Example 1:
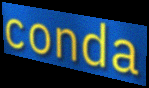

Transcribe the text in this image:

conda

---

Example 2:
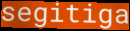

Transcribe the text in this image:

segitiga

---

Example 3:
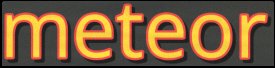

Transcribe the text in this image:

meteor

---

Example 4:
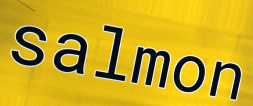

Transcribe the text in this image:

salmon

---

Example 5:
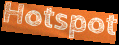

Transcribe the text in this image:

Hotspot